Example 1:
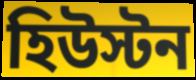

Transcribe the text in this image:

হিউস্টন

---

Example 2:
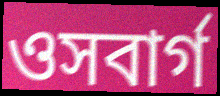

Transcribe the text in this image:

ওসবার্গ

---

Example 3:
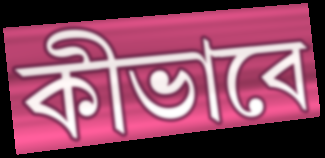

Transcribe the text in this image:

কীভাবে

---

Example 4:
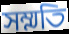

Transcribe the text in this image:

সম্মতি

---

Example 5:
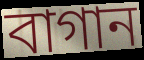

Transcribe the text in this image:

বাগান